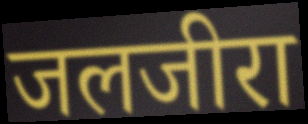
जलजीरा